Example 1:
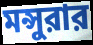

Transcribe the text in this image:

মন্সুরার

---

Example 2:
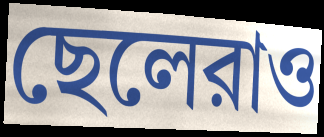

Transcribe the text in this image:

ছেলেরাও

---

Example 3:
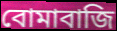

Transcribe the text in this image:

বোমাবাজি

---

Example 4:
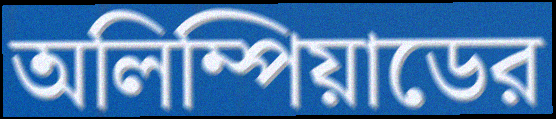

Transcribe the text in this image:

অলিম্পিয়াডের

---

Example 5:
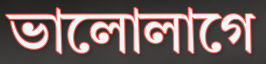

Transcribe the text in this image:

ভালোলাগে